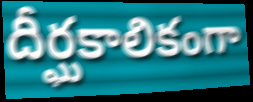
దీర్ఘకాలికంగా